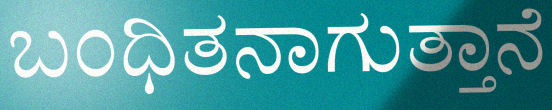
ಬಂಧಿತನಾಗುತ್ತಾನೆ